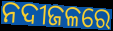
ନଦୀଜଳରେ